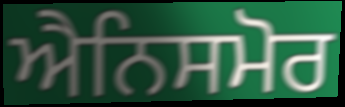
ਐਨਿਸਮੋਰ